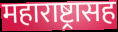
महाराष्ट्रासह